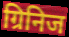
ग्रिनिज